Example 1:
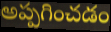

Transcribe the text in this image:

అప్పగించడం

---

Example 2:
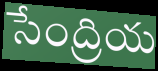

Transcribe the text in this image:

సేంద్రియ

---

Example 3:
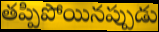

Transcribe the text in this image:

తప్పిపోయినప్పుడు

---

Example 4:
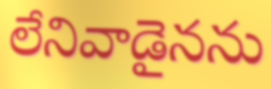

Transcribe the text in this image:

లేనివాడైనను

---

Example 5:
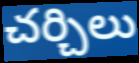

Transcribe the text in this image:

చర్చిలు